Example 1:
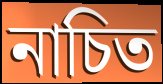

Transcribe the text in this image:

নাচিত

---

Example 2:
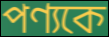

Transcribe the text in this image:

পণ্যকে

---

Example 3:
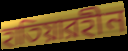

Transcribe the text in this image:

হাতিয়ারহীন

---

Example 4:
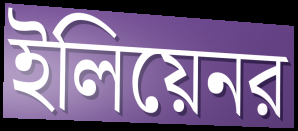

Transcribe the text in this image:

ইলিয়েনর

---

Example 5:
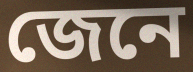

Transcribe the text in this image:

জেনে